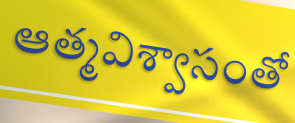
ఆత్మవిశ్వాసంతో